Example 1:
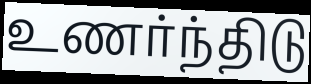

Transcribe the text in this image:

உணர்ந்திடு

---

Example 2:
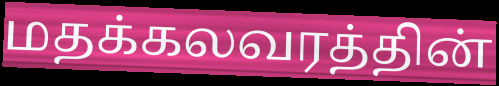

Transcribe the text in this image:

மதக்கலவரத்தின்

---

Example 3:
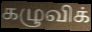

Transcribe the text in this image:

கழுவிக்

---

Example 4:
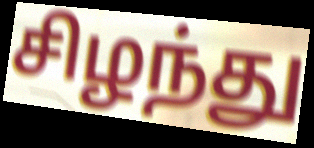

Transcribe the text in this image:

சிழந்து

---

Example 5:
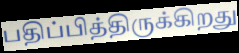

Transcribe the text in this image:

பதிப்பித்திருக்கிறது